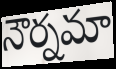
నౌర్నమా